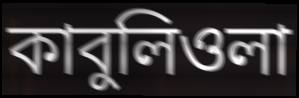
কাবুলিওলা